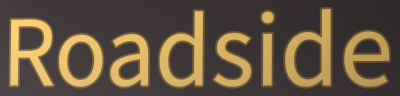
Roadside